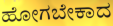
ಹೋಗಬೇಕಾದ